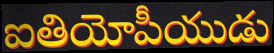
ఐతియోపీయుడు